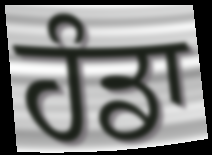
ਹੰਡਾ